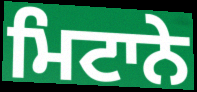
ਮਿਟਾਨੇ